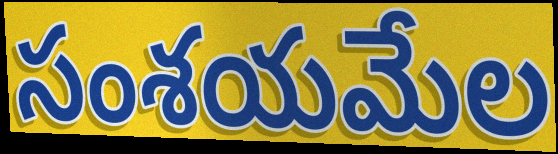
సంశయమేల